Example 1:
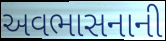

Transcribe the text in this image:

અવભાસનાની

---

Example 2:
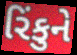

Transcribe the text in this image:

રિંકુને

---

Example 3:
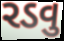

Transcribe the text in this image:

રડવુ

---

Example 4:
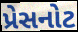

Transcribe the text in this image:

પ્રેસનોટ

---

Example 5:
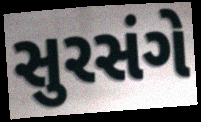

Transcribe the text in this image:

સુરસંગે